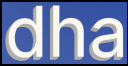
dha